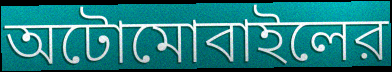
অটোমোবাইলের